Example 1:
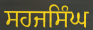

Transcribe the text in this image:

ਸਹਜਸਿੰਘ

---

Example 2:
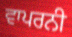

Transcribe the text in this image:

ਵਾਪਰਨੀ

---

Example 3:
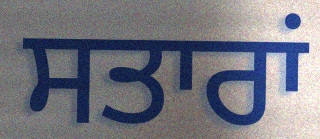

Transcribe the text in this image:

ਸਤਾਰਾਂ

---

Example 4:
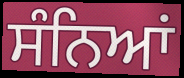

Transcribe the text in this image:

ਸੰਨਿਆਂ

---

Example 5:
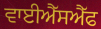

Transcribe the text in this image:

ਵਾਈਐੱਸਐੱਫ